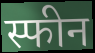
स्फीन